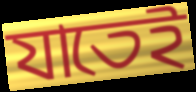
যাতেই